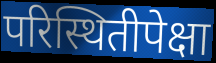
परिस्थितीपेक्षा